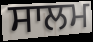
ਸਾਲਮ